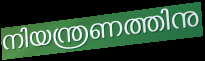
നിയന്ത്രണത്തിനു